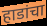
हाडांचा